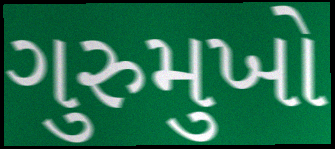
ગુરુમુખો